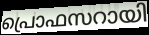
പ്രൊഫസറായി